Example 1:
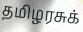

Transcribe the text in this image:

தமிழரசுக்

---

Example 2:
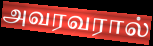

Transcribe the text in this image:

அவரவரால்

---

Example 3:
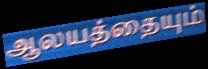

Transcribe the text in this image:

ஆலயத்தையும்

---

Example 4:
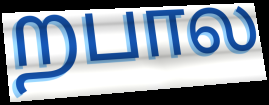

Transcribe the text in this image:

றபால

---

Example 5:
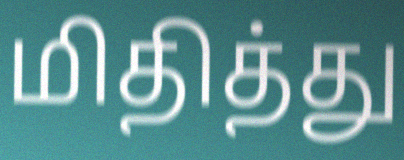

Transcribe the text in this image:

மிதித்து